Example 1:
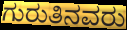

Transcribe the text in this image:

ಗುರುತಿನವರು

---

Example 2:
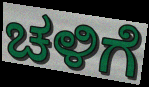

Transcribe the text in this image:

ಚಳಿಗೆ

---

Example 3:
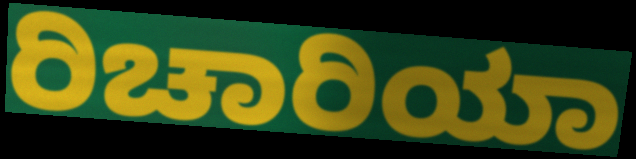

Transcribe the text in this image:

ರಿಚಾರಿಯಾ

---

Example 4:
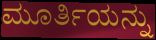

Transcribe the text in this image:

ಮೂರ್ತಿಯನ್ನು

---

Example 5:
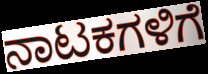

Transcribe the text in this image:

ನಾಟಕಗಳಿಗೆ